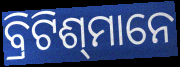
ବ୍ରିଟିଶ୍‍ମାନେ